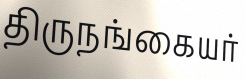
திருநங்கையர்